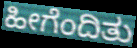
ಹೀಗೆಂದಿತು